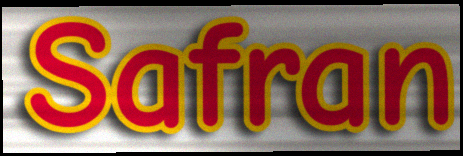
Safran